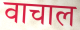
वाचाल